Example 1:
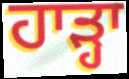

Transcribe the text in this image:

ਹਾੜ੍ਹਾ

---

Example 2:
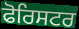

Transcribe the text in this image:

ਫੋਰਿਸਟਰ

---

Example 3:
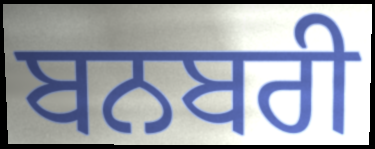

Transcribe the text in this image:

ਬਨਬਰੀ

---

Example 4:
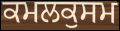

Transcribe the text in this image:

ਕਮਲਕੁਸਮ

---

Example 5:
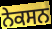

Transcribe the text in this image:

ਨੇਕਸਨ